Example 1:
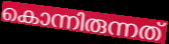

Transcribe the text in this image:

കൊന്നിരുന്നത്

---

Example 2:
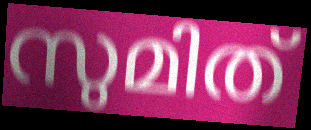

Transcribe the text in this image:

സുമിത്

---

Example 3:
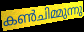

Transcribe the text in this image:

കൺചിമ്മുന്നു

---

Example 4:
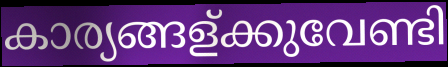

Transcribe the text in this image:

കാര്യങ്ങള്ക്കുവേണ്ടി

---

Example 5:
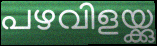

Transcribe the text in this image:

പഴവിളയ്ക്കു